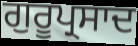
ਗੁਰੂਪ੍ਰਸਾਦ